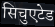
सिचुएटेड